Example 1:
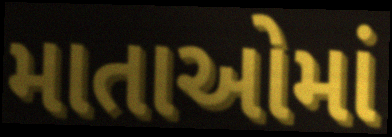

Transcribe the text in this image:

માતાઓમાં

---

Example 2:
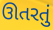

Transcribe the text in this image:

ઊતરતું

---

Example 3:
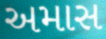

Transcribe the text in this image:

અમાસ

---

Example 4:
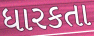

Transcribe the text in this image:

ધારકતા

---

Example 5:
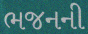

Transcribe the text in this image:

ભજનની